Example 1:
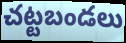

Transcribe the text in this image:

చట్టబండలు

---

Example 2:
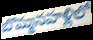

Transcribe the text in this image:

బొమ్మనహళ్లిలో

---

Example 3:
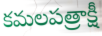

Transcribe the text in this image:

కమలపత్రాక్షీ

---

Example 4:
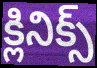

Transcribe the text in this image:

క్లినిక్స్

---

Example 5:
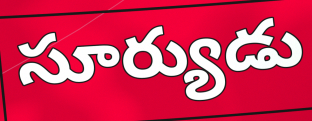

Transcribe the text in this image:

సూర్యుడు